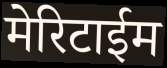
मेरिटाईम